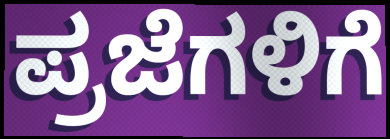
ಪ್ರಜೆಗಳಿಗೆ